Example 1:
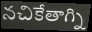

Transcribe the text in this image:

నచికేతాగ్ని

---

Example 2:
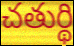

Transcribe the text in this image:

చతుర్థి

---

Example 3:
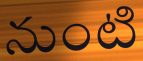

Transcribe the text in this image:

నుంటి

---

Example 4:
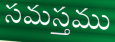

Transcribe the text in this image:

సమస్తము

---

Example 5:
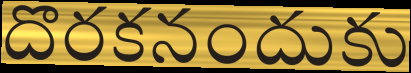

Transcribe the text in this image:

దొరకనందుకు